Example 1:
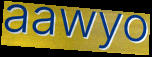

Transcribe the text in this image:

aawyo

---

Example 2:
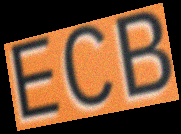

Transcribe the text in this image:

ECB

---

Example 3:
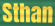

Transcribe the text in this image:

Sthan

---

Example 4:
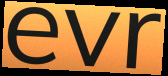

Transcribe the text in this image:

evr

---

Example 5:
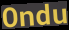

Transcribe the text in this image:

Ondu